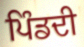
ਪਿੰਡਦੀ